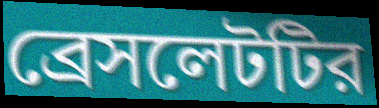
ব্রেসলেটটির